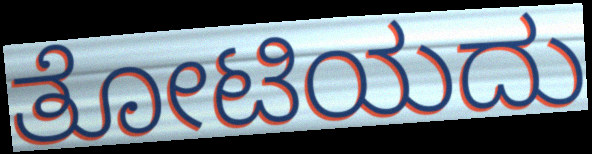
ತೋಟಿಯದು